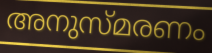
അനുസ്മരണം